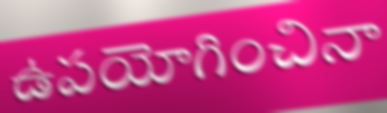
ఉపయోగించినా